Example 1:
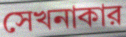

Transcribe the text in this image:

সেখনাকার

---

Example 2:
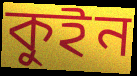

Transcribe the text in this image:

কুইন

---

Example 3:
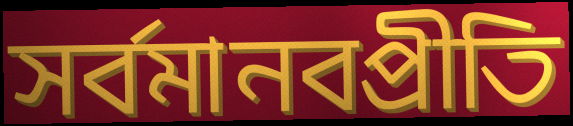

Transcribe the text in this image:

সর্বমানবপ্রীতি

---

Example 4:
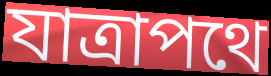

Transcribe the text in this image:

যাত্রাপথে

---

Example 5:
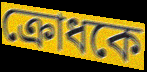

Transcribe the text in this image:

ক্রোধকে